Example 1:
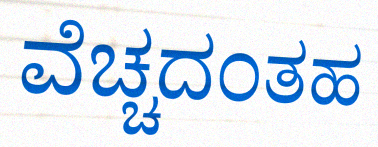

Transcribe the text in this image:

ವೆಚ್ಚದಂತಹ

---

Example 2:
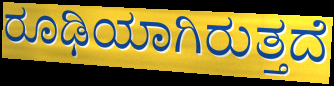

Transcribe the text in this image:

ರೂಢಿಯಾಗಿರುತ್ತದೆ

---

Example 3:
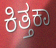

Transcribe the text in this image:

ಕಿತ್ತಕಾ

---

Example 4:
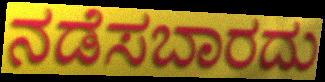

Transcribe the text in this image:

ನಡೆಸಬಾರದು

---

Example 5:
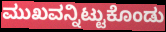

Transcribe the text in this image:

ಮುಖವನ್ನಿಟ್ಟುಕೊಂಡು